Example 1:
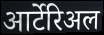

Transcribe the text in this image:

आर्टेरिअल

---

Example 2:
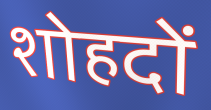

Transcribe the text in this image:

शोहदों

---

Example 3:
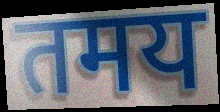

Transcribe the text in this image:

तमय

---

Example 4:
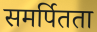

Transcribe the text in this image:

समर्पितता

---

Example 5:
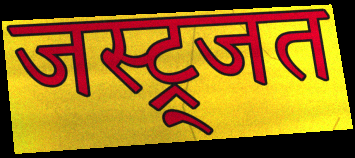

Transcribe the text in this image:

जस्ट्र्जत